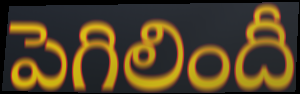
పెగిలిందీ